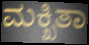
ಮಕ್ಖಿತಾ